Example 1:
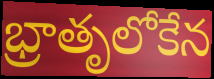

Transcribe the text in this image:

భ్రాతృలోకేన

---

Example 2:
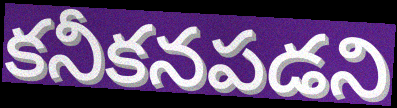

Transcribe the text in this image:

కనీకనపడని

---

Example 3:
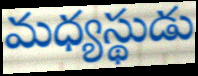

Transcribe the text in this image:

మధ్యస్థుడు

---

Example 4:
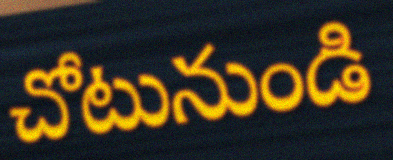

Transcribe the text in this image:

చోటునుండి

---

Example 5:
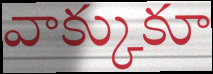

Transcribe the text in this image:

వాక్కుకూ